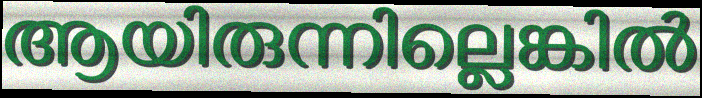
ആയിരുന്നില്ലെങ്കിൽ